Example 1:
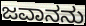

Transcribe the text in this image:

ಜವಾನನು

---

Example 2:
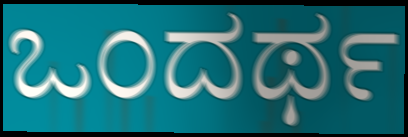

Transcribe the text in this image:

ಒಂದರ್ಥ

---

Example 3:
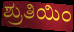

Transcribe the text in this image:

ಶ್ರುತಿಯಿಂ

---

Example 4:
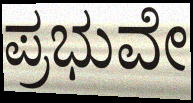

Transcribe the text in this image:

ಪ್ರಭುವೇ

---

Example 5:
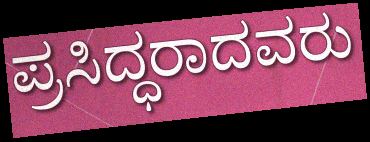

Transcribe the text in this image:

ಪ್ರಸಿದ್ಧರಾದವರು